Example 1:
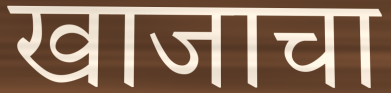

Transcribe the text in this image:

खाजाचा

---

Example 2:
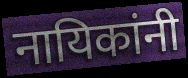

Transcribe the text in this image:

नायिकांनी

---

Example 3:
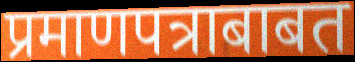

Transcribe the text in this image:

प्रमाणपत्राबाबत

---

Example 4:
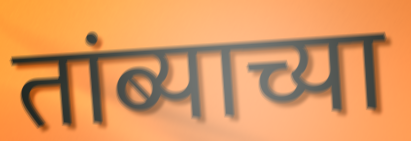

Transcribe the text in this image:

तांब्याच्या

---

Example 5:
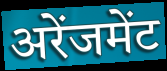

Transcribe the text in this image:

अरेंजमेंट